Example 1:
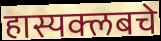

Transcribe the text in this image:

हास्यक्लबचे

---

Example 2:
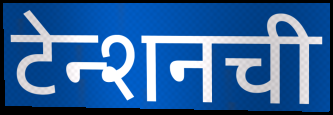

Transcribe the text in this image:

टेन्शनची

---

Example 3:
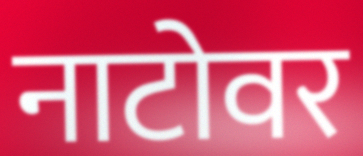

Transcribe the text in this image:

नाटोवर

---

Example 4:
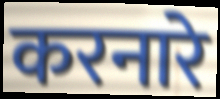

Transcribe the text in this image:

करनारे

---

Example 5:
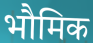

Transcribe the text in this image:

भौमिक